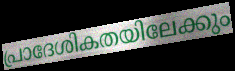
പ്രാദേശികതയിലേക്കും